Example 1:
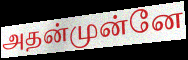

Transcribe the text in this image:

அதன்முன்னே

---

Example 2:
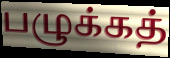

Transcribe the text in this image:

பழுக்கத்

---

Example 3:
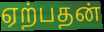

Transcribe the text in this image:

ஏற்பதன்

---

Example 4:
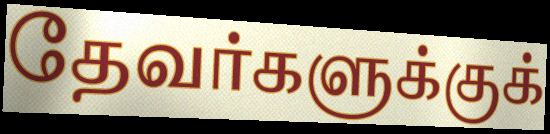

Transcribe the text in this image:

தேவர்களுக்குக்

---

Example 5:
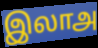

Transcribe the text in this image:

இலாஅ